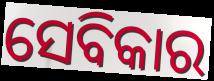
ସେବିକାର